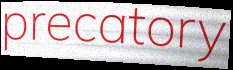
precatory